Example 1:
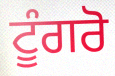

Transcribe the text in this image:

ਟੂੰਗਰੋ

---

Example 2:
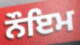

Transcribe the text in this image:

ਨੌਇਮ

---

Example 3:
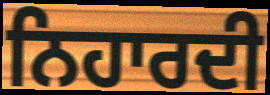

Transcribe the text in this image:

ਨਿਹਾਰਦੀ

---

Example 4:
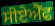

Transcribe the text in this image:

ਸੀਏਐੱਫ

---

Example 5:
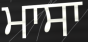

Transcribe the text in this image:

ਮਾਸਾ